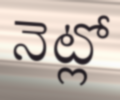
నెట్లో